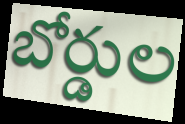
బోర్డుల